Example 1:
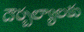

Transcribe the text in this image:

దౌర్బల్యాలకు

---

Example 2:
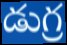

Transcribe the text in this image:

డుగ్ర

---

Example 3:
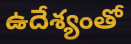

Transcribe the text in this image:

ఉదేశ్యంతో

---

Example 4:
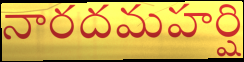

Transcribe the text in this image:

నారదమహర్షి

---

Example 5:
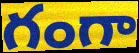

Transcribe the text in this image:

గంగా